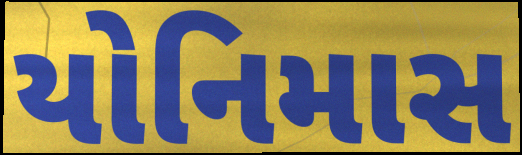
યોનિમાસ